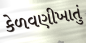
કેળવણીખાતું